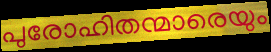
പുരോഹിതന്മാരെയും